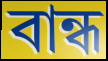
বান্ধ